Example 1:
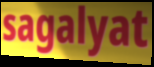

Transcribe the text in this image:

sagalyat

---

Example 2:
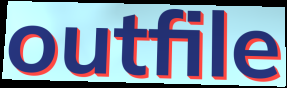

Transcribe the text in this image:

outfile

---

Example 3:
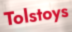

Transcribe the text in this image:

Tolstoys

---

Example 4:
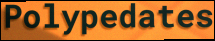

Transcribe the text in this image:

Polypedates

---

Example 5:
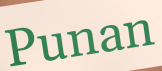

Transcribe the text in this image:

Punan